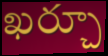
ఖర్చూ